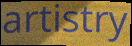
artistry